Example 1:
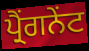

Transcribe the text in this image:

ਪ੍ਰੈਂਗਨੇਂਟ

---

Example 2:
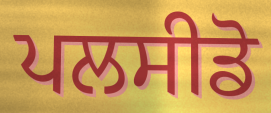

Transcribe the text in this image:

ਪਲਸੀਡੋ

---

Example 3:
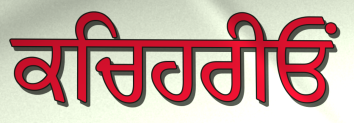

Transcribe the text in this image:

ਕਚਿਹਰੀਓਂ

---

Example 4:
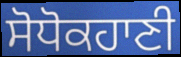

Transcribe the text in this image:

ਸੋਧੋਕਹਾਣੀ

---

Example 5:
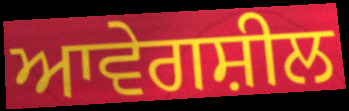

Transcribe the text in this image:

ਆਵੇਗਸ਼ੀਲ